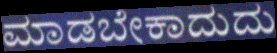
ಮಾಡಬೇಕಾದುದು